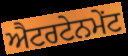
ਐਟਰਟੇਨਮੇਂਟ